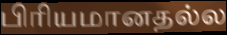
பிரியமானதல்ல